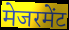
मेजरमेंट